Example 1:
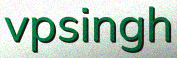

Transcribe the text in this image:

vpsingh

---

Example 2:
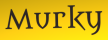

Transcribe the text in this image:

Murky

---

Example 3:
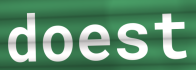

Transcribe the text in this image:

doest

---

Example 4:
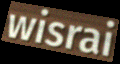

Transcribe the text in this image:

wisrai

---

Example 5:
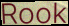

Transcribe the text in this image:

Rook